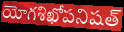
యోగశిఖోపనిషత్